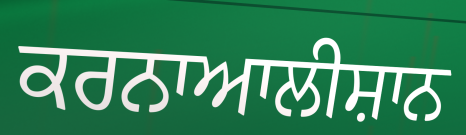
ਕਰਨਾਆਲੀਸ਼ਾਨ